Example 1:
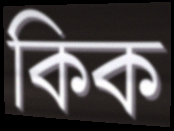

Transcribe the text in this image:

কিক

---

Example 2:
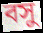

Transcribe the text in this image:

বসু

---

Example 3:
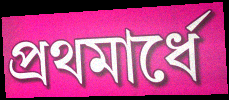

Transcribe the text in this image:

প্রথমার্ধে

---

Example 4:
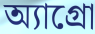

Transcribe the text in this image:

অ্যাগ্রো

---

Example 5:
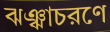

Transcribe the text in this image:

ঝঞ্ঝাচরণে